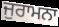
ਜੁਰਾਮਨਾ